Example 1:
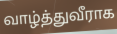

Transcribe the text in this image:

வாழ்த்துவீராக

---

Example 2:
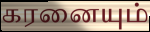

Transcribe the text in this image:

கரனையும்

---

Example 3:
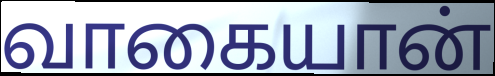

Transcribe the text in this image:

வாகையான்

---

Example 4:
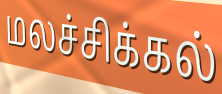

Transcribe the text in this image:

மலச்சிக்கல்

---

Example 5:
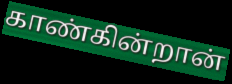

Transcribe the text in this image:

காண்கின்றான்